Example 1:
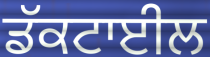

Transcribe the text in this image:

ਡੱਕਟਾਈਲ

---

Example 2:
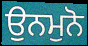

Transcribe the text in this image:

ਉਨਮੁਨੋ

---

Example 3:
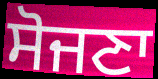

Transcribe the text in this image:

ਸੋਜਣਾ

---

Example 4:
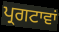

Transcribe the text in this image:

ਪ੍ਰਗਟਾਵਾਂ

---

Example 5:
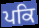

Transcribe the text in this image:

ਪਕਿ